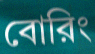
বোরিং